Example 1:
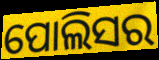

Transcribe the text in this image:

ପୋଲିସର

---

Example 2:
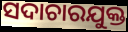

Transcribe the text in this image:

ସଦାଚାରଯୁକ୍ତ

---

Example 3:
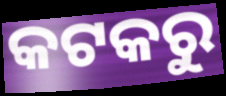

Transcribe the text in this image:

କଟକରୁ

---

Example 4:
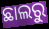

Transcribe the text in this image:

ଛାଲରୁ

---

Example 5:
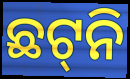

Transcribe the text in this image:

ଛଟ୍‌ନି